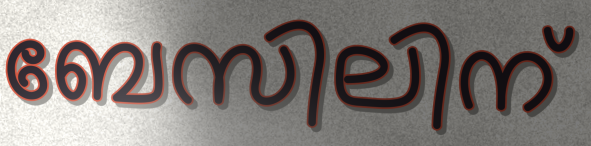
ബേസിലിന്